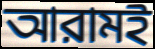
আরামই